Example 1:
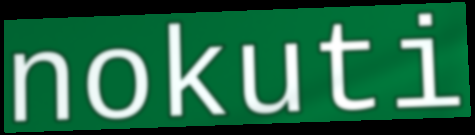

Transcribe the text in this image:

nokuti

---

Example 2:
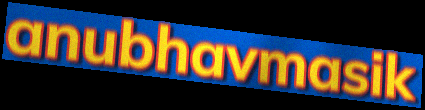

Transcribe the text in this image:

anubhavmasik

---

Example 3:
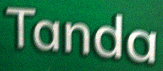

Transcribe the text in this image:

Tanda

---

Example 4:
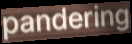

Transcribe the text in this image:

pandering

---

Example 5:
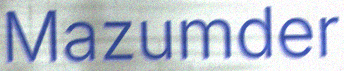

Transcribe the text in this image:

Mazumder